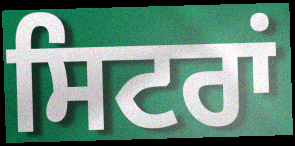
ਸਿਟਰਾਂ